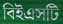
বিইএসটি